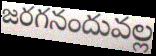
జరగనందువల్ల